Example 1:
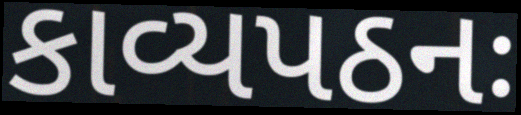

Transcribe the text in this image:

કાવ્યપઠનઃ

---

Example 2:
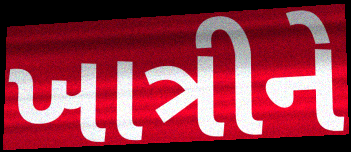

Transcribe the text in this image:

ખાત્રીને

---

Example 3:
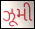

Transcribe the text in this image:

ઝૂમી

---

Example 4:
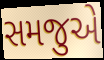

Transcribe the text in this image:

સમજુએ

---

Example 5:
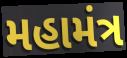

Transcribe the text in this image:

મહામંત્ર